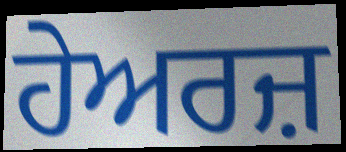
ਹੇਅਰਜ਼